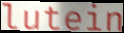
lutein